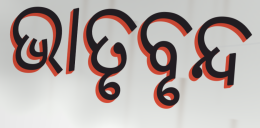
ଭାତୃବୃନ୍ଦ